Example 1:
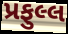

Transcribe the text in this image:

પ્રફુલ્લ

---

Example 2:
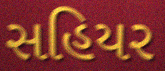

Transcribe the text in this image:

સહિયર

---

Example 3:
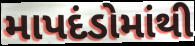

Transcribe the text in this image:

માપદંડોમાંથી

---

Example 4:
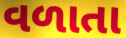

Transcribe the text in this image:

વળાતા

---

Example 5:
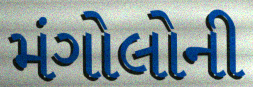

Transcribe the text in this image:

મંગોલોની